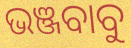
ଭଞ୍ଜବାବୁ